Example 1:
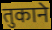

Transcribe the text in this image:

तुकाने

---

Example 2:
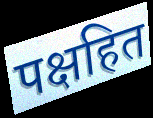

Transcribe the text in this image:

पक्षहित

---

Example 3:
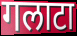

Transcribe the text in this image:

गलाटा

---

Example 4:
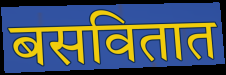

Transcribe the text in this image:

बसवितात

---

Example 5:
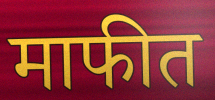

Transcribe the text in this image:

माफीत